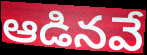
ఆడినవే